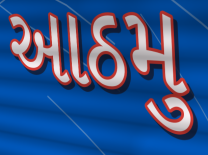
આઠમુ